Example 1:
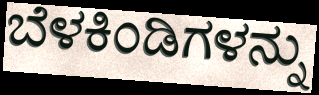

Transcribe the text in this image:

ಬೆಳಕಿಂಡಿಗಳನ್ನು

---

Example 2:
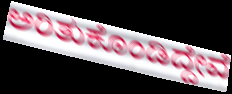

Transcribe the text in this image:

ಅರಿತುಕೊಂಡಿದ್ದೇವೆ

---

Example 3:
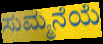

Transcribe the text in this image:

ಸುಮ್ಮನೆಯೆ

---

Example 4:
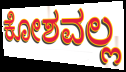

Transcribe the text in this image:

ಕೋಶವಲ್ಲ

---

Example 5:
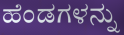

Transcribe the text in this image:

ಹೆಂಡಗಳನ್ನು